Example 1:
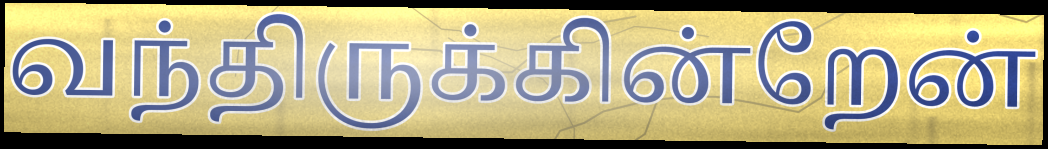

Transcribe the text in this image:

வந்திருக்கின்றேன்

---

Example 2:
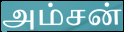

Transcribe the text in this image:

அம்சன்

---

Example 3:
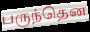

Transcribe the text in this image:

பருந்தென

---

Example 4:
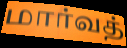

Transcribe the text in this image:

மார்வத்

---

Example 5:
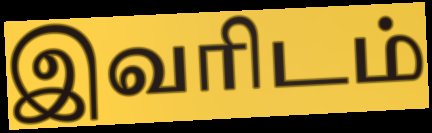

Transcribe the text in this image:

இவரிடம்